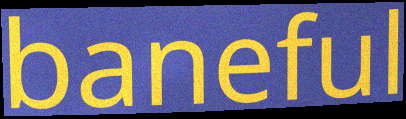
baneful